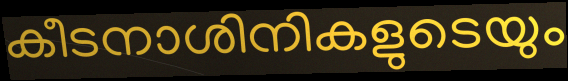
കീടനാശിനികളുടെയും